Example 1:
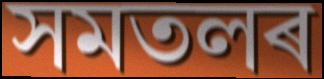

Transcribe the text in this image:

সমতলৰ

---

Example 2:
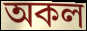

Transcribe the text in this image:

অকল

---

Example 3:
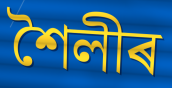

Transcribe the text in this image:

শৈলীৰ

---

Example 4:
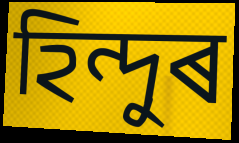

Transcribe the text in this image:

হিন্দুৰ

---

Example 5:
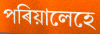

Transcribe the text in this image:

পৰিয়ালেহে